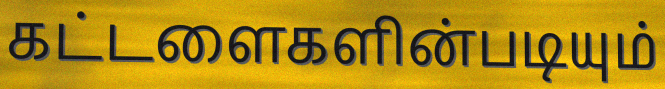
கட்டளைகளின்படியும்